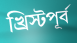
খ্রিস্টপূর্ব